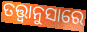
ତତ୍ତ୍ୱାନୁସାରେ